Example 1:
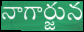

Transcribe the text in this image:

నాగార్జున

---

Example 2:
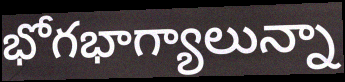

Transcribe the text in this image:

భోగభాగ్యాలున్నా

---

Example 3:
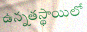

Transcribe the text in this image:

ఉన్నతస్థాయిలో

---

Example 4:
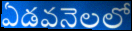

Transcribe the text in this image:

ఏడవనెలలో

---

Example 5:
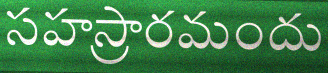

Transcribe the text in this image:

సహస్రారమందు